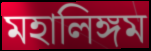
মহালিঙ্গম